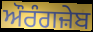
ਔਰੰਗਜ਼ੇਬ